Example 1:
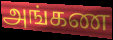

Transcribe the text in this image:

அங்கண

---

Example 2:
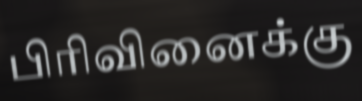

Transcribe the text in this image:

பிரிவினைக்கு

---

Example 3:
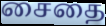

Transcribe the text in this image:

சைதை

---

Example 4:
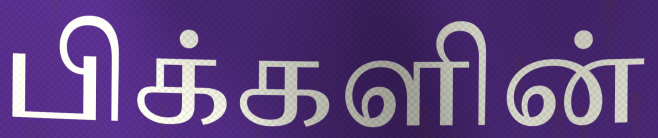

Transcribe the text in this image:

பிக்களின்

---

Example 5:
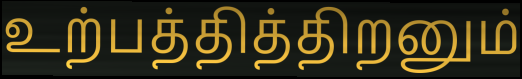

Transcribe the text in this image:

உற்பத்தித்திறனும்